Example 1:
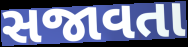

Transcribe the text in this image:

સજાવતા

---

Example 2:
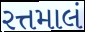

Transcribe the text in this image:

રત્તમાલં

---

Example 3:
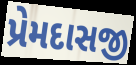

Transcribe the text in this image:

પ્રેમદાસજી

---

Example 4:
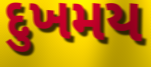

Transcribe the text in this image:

દુખમય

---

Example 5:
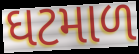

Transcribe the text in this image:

ઘટમાળ